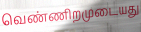
வெண்ணிறமுடையது